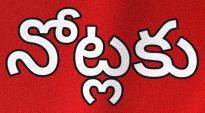
నోట్లకు